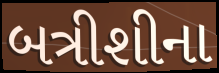
બત્રીશીના